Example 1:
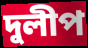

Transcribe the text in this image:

দুলীপ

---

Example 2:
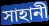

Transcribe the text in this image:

সাহানী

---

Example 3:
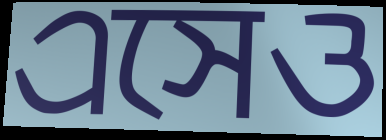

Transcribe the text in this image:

এসেও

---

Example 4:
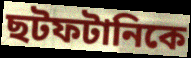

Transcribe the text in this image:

ছটফটানিকে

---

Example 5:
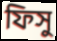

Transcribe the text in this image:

ফিসু